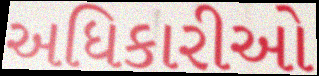
અધિકારીઓ